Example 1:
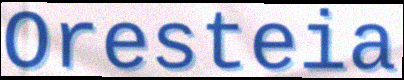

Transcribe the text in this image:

Oresteia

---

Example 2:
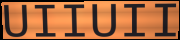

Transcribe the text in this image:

UIIUII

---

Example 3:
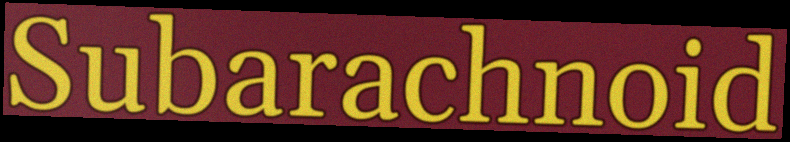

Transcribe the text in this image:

Subarachnoid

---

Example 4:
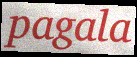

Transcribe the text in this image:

pagala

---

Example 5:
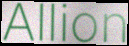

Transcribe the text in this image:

Allion